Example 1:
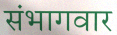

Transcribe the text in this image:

संभागवार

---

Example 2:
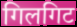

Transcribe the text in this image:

गिलगिट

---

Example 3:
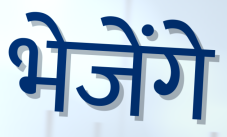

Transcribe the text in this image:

भेजेंगे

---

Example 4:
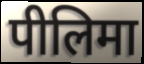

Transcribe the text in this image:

पीलिमा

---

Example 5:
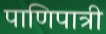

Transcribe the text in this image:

पाणिपात्री